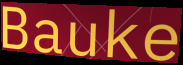
Bauke